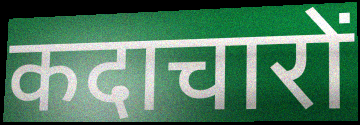
कदाचारों